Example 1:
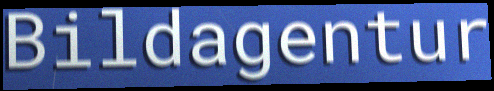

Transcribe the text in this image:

Bildagentur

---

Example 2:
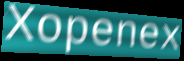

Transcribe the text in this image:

Xopenex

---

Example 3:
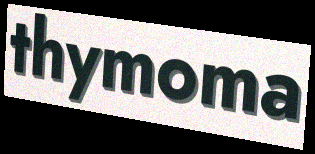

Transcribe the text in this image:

thymoma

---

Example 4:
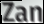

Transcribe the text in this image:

Zan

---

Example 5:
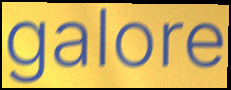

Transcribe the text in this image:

galore